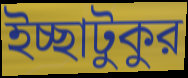
ইচ্ছাটুকুর